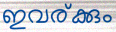
ഇവര്ക്കും